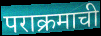
पराक्रमाची